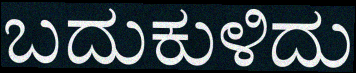
ಬದುಕುಳಿದು